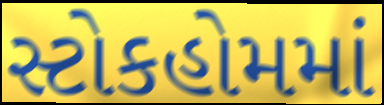
સ્ટોકહોમમાં